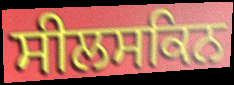
ਸੀਲਸਕਿਨ